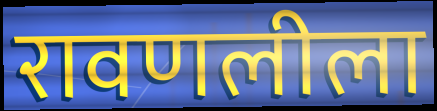
रावणलीला